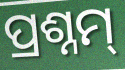
ପ୍ରଶ୍ନମ୍